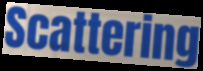
Scattering